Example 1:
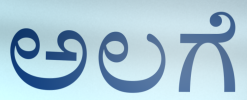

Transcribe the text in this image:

ಅಲಗೆ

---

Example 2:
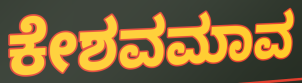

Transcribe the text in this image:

ಕೇಶವಮಾವ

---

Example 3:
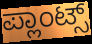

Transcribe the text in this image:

ಪ್ಲಾಂಟ್ಸ್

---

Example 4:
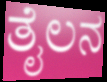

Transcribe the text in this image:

ತೈಲನ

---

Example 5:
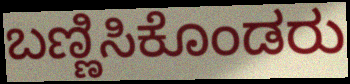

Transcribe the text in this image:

ಬಣ್ಣಿಸಿಕೊಂಡರು